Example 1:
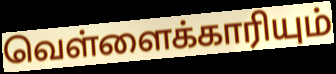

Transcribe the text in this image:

வெள்ளைக்காரியும்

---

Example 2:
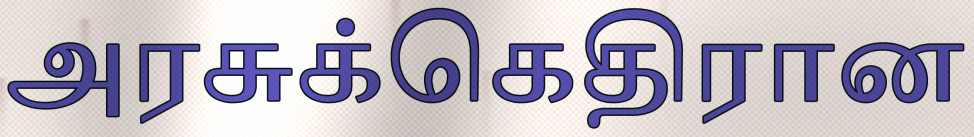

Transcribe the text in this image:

அரசுக்கெதிரான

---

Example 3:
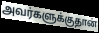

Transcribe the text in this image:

அவர்களுக்குதான்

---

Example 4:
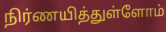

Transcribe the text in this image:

நிர்ணயித்துள்ளோம்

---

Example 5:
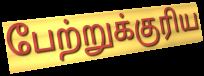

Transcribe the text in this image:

பேற்றுக்குரிய